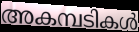
അകമ്പടികൾ